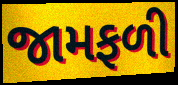
જામફળી